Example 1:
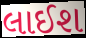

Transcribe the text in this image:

લાઈશ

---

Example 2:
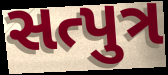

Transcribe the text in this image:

સત્પુત્ર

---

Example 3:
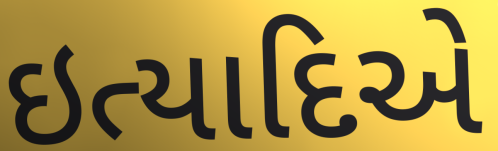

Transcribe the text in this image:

ઇત્યાદિએ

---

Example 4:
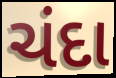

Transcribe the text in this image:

ચંદા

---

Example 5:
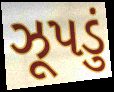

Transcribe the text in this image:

ઝૂપડું